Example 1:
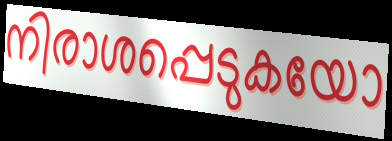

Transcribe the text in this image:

നിരാശപ്പെടുകയോ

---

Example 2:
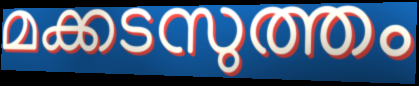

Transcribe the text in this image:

മക്കടസുത്തം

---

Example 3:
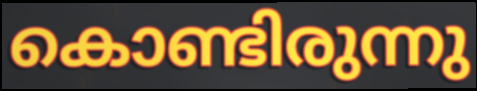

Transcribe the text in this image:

കൊണ്ടിരുന്നു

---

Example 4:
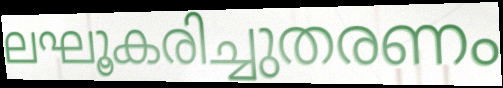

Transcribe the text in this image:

ലഘൂകരിച്ചുതരണം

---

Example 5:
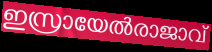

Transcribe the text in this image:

ഇസ്രായേൽരാജാവ്